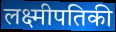
लक्ष्मीपतिकी